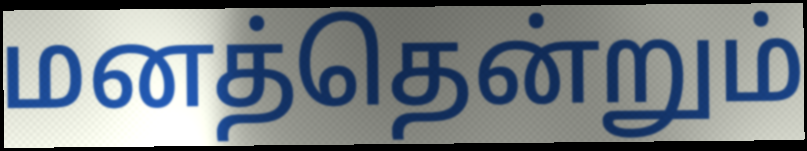
மனத்தென்றும்